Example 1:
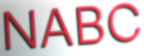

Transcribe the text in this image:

NABC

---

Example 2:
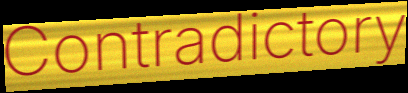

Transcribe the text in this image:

Contradictory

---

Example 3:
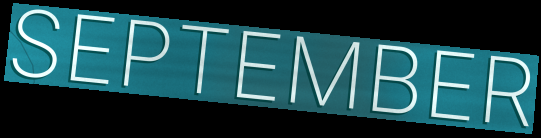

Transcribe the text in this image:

SEPTEMBER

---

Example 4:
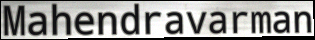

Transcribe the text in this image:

Mahendravarman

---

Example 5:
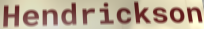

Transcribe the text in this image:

Hendrickson